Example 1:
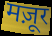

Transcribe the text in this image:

मज़ूर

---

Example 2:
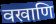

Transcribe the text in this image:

वखाणि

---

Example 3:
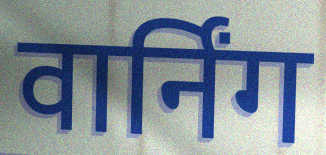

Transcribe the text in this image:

वार्निंग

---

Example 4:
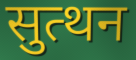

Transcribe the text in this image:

सुत्थन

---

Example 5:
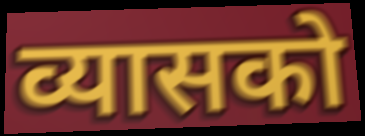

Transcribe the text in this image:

व्यासको